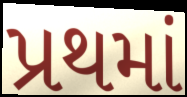
પ્રથમાં